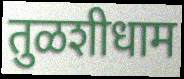
तुळशीधाम